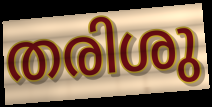
തരിശു